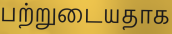
பற்றுடையதாக